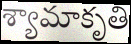
శ్యామాకృతి